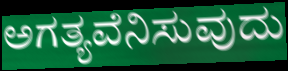
ಅಗತ್ಯವೆನಿಸುವುದು